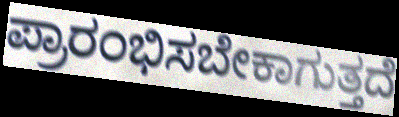
ಪ್ರಾರಂಭಿಸಬೇಕಾಗುತ್ತದೆ